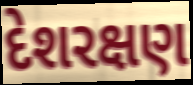
દેશરક્ષણ